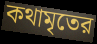
কথামৃতের